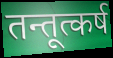
तन्तूत्कर्ष